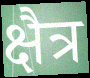
क्षैत्र